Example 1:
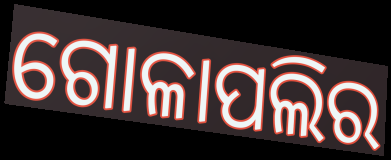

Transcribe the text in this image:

ଗୋଳାପଲିର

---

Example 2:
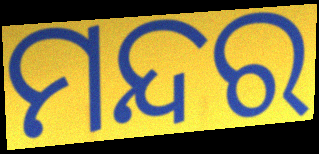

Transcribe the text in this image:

ମନ୍ଦର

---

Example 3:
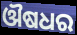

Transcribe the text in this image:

ଔଷଧର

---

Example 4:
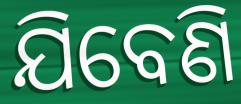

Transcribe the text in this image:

ଯିବେଣି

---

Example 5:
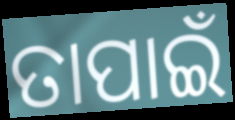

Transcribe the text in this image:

ତାପାଇଁ